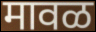
मावळ